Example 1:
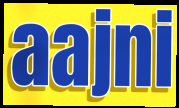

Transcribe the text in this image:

aajni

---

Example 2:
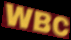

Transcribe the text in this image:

WBC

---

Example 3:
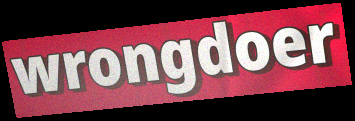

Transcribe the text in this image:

wrongdoer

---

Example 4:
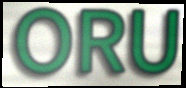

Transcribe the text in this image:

ORU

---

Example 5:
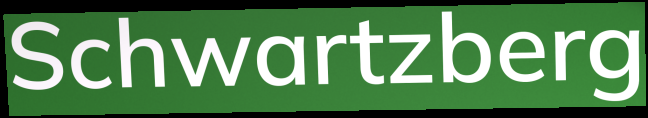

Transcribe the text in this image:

Schwartzberg